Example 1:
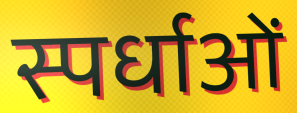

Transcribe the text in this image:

स्‍पर्धाओं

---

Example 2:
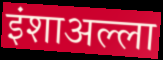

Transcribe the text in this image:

इंशाअल्ला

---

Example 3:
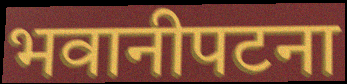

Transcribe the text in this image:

भवानीपटना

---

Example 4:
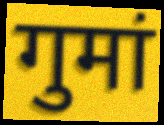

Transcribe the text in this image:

गुमां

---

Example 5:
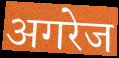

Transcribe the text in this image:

अगरेज